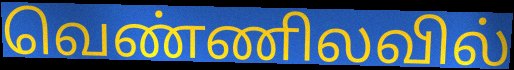
வெண்ணிலவில்